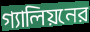
গ্যালিয়নের